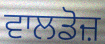
ਵਾਲਡੋਜ਼